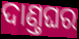
ଦାଣ୍ତଘର